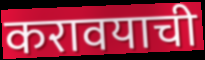
करावयाची